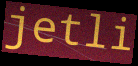
jetli